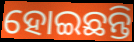
ହୋଇଛନ୍ତି